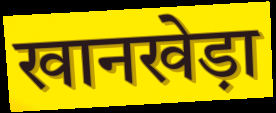
खानखेड़ा